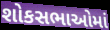
શોકસભાઓમાં